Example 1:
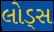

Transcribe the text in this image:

લોડ્સ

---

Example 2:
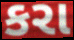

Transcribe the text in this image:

કરા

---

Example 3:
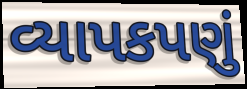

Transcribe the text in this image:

વ્યાપકપણું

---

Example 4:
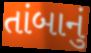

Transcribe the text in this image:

તાંબાનું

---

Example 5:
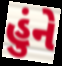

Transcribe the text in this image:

હુંને